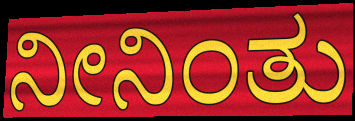
ನೀನಿಂತು